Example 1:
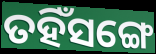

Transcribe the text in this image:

ତହିଁସଙ୍ଗେ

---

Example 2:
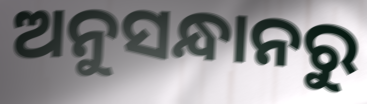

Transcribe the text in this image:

ଅନୁସନ୍ଧାନରୁ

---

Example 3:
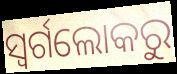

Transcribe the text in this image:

ସ୍ଵର୍ଗଲୋକରୁ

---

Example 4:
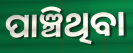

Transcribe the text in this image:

ପାଞ୍ଚିଥିବା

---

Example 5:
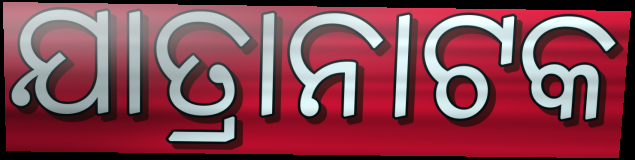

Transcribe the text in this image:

ଯାତ୍ରାନାଟକ